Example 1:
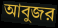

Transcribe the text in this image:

আবুজর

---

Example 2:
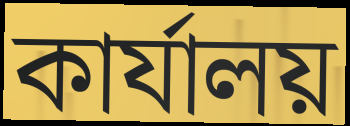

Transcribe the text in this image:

কার্যালয়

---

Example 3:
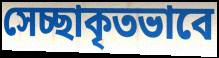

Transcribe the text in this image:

সেচ্ছাকৃতভাবে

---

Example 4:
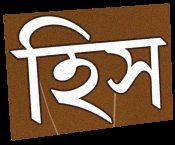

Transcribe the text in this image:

হিস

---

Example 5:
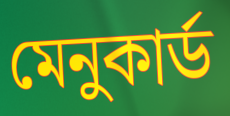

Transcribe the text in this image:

মেনুকার্ড